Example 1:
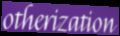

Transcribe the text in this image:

otherization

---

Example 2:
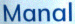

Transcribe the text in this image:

Manal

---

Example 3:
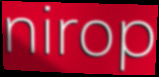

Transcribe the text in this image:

nirop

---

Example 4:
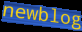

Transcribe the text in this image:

newblog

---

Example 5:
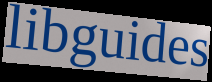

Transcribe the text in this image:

libguides